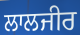
ਲਾਲਜੀਰ